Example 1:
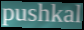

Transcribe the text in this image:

pushkal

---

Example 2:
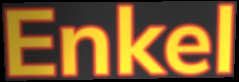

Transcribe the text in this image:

Enkel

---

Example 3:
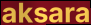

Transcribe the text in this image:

aksara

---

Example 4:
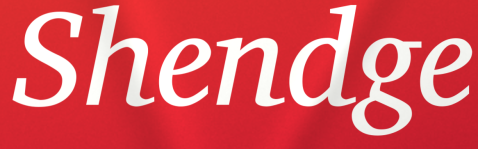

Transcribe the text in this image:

Shendge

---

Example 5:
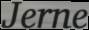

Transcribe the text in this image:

Jerne